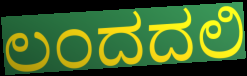
ಲಂದದಲಿ